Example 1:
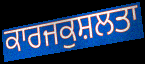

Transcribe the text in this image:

ਕਾਰਜਕੁਸ਼ਲਤਾ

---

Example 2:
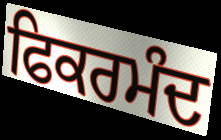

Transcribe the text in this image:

ਫਿਕਰਮੰਦ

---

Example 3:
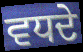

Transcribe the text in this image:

ਵਧਦੇ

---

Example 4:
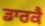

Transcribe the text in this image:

ਡਾਰਕੈ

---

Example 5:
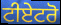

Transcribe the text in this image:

ਟੀਏਟਰੋ